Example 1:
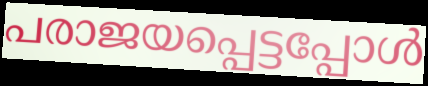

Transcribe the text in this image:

പരാജയപ്പെട്ടപ്പോൾ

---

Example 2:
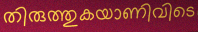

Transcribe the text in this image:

തിരുത്തുകയാണിവിടെ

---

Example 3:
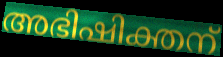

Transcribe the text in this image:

അഭിഷിക്തന്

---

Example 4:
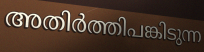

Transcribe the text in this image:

അതിർത്തിപങ്കിടുന്ന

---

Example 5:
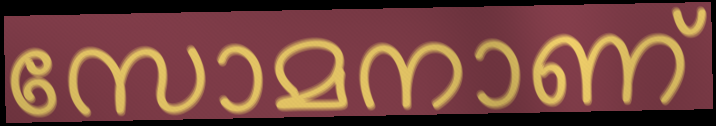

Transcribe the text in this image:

സോമനാണ്